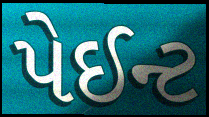
પેઈન્ટ